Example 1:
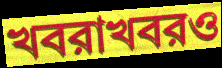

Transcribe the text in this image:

খবরাখবরও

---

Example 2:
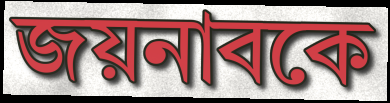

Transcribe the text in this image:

জয়নাবকে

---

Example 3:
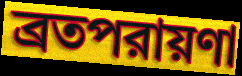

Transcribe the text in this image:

ব্রতপরায়ণা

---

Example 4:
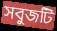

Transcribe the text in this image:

সবুজটি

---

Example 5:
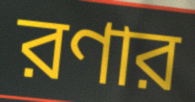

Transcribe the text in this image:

রণার